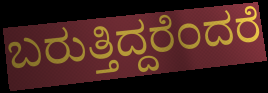
ಬರುತ್ತಿದ್ದರೆಂದರೆ